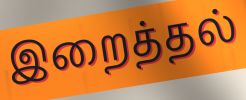
இறைத்தல்